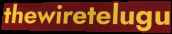
thewiretelugu